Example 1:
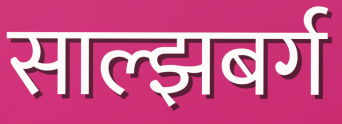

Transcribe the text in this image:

साल्झबर्ग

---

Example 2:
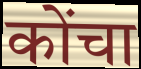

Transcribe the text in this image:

कोंचा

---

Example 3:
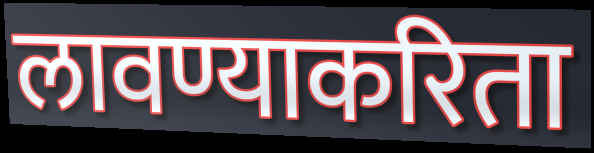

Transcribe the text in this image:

लावण्याकरिता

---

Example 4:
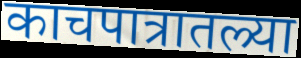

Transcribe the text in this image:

काचपात्रातल्या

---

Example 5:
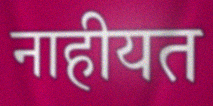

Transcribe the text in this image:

नाहीयत